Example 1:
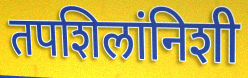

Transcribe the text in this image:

तपशिलांनिशी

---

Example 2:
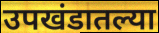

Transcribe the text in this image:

उपखंडातल्या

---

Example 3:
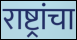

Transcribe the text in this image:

राष्ट्रांचा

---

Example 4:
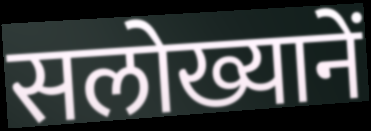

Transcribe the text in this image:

सलोख्यानें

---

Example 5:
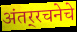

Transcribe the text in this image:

अंतर्रचनेचे